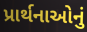
પ્રાર્થનાઓનું